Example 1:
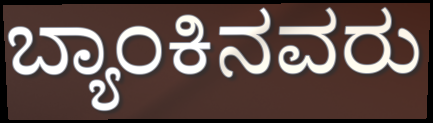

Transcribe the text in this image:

ಬ್ಯಾಂಕಿನವರು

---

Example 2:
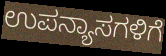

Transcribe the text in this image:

ಉಪನ್ಯಾಸಗಳಿಗೆ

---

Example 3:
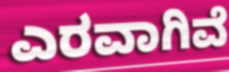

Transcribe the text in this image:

ಎರವಾಗಿವೆ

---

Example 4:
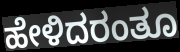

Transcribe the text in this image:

ಹೇಳಿದರಂತೂ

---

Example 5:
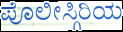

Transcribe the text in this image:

ಪೊಲೀಸ್ಗಿರಿಯ